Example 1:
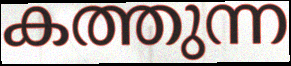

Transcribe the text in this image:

കത്തുന്ന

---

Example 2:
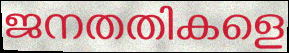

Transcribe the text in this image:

ജനതതികളെ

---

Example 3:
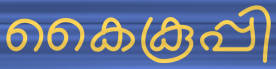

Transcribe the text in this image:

കൈകൂപ്പി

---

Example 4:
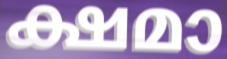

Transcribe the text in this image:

ക്ഷമാ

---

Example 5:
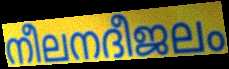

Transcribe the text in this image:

നീലനദീജലം